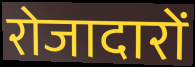
रोजादारों